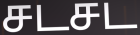
சடசட